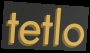
tetlo